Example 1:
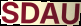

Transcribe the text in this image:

SDAU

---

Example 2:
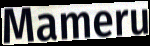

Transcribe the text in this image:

Mameru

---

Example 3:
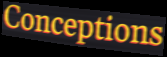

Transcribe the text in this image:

Conceptions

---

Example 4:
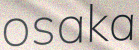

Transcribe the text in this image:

osaka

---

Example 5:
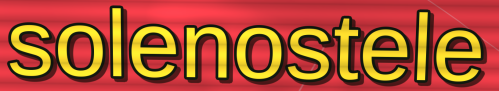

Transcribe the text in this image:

solenostele